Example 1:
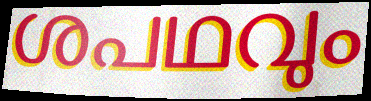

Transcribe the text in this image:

ശപഥവും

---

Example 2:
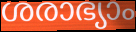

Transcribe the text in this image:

ശരാഭ്യാം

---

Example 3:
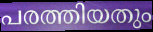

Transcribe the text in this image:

പരത്തിയതും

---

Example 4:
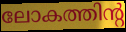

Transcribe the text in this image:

ലോകത്തിന്റ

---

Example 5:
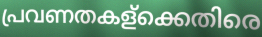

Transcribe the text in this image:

പ്രവണതകള്ക്കെതിരെ